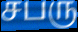
சபரு